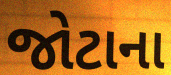
જોટાના